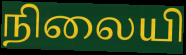
நிலையி